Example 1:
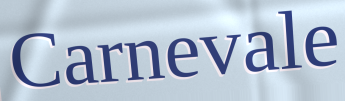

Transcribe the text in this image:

Carnevale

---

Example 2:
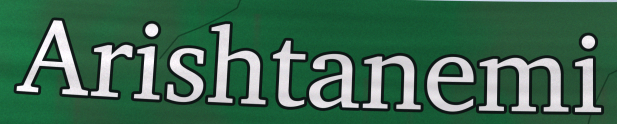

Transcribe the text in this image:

Arishtanemi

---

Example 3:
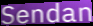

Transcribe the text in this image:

Sendan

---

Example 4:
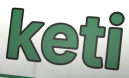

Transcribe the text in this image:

keti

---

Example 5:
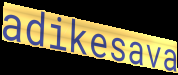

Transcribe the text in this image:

adikesava